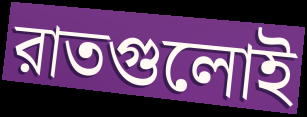
রাতগুলোই